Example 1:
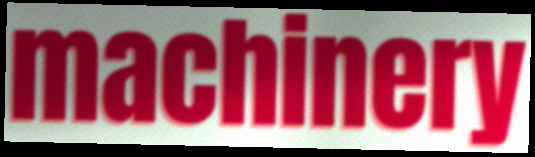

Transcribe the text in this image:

machinery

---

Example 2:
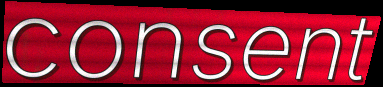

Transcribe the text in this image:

consent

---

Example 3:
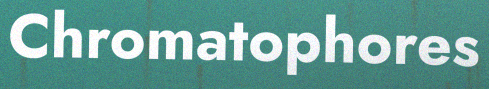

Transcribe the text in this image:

Chromatophores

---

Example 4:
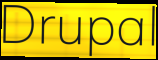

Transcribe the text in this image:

Drupal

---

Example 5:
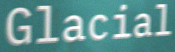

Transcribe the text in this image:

Glacial